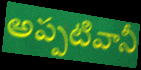
అప్పటివానీ